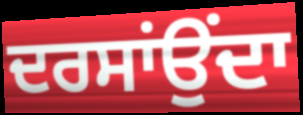
ਦਰਸਾਂਉਂਦਾ